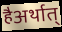
हैअर्थात्